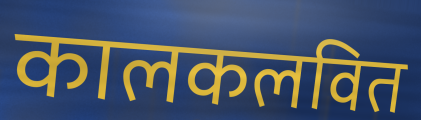
कालकलवित